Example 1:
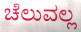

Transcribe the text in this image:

ಚೆಲುವಲ್ಲ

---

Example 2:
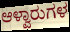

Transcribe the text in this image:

ಆಳ್ವಾರುಗಳ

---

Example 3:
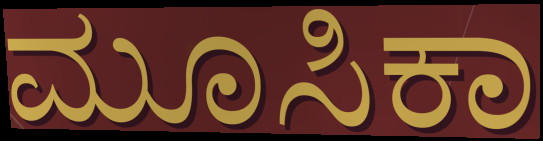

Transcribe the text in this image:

ಮೂಸಿಕಾ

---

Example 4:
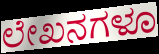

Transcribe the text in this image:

ಲೇಖನಗಳೂ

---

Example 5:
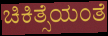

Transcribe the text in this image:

ಚಿಕಿತ್ಸೆಯಂತೆ